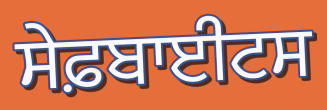
ਸੇਫ਼ਬਾਈਟਸ